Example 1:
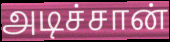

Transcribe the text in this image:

அடிச்சான்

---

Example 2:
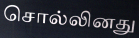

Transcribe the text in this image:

சொல்லினது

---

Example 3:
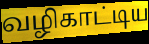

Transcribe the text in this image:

வழிகாட்டிய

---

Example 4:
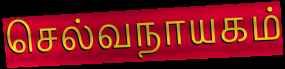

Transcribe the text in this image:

செல்வநாயகம்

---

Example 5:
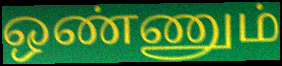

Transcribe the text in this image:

ஒண்ணும்